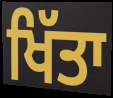
ਖਿੱਤਾ